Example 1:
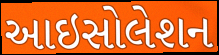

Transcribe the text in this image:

આઇસોલેશન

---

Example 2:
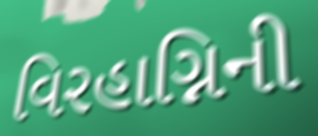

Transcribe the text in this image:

વિરહાગ્નિની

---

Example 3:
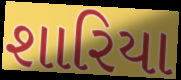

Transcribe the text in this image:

શારિયા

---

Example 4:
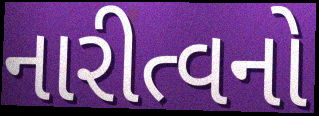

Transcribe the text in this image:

નારીત્વનો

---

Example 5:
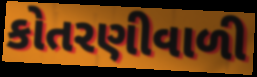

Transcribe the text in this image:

કોતરણીવાળી